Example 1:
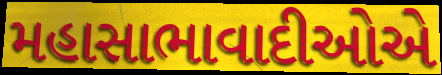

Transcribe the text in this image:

મહાસાભાવાદીઓએ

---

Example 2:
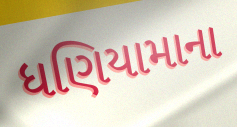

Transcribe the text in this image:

ધણિયામાના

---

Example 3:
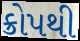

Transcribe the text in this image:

ક્રોપથી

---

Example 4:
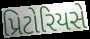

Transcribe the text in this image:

પ્રિટોરિયસે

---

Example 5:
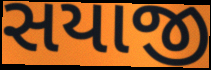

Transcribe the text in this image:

સયાજી